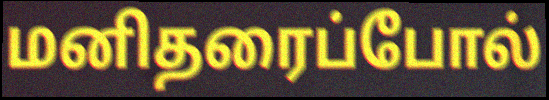
மனிதரைப்போல்